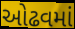
ઓઢવમાં